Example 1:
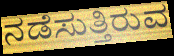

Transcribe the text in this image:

ನಡೆಸುತ್ತಿರುವ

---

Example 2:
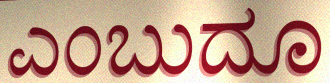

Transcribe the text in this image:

ಎಂಬುದೂ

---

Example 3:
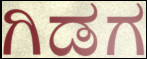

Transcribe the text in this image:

ಗಿಡಗ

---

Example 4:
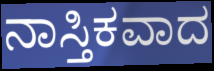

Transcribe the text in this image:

ನಾಸ್ತಿಕವಾದ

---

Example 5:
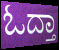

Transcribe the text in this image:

ಓದ್ತಾ